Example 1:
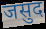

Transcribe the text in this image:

जसुद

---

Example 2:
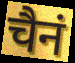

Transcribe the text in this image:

चैनं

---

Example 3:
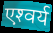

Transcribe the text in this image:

एश्‍वर्य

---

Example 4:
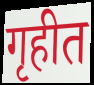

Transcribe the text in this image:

गृहीत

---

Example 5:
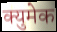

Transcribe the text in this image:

क्युमेक